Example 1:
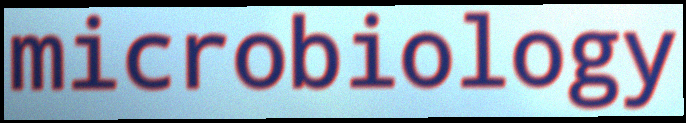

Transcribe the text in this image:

microbiology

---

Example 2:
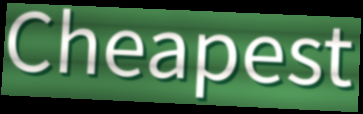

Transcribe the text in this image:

Cheapest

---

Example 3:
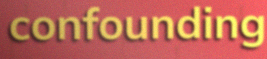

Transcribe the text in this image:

confounding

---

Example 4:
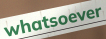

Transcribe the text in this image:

whatsoever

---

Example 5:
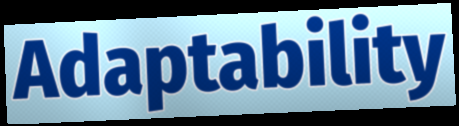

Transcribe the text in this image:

Adaptability